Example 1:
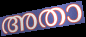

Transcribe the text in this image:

അതാ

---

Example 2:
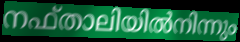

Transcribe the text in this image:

നഫ്താലിയിൽനിന്നും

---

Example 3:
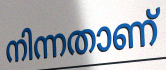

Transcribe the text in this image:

നിന്നതാണ്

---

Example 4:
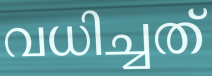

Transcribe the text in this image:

വധിച്ചത്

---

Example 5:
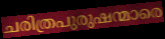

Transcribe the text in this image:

ചരിത്രപുരുഷന്മാരെ